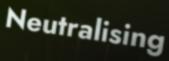
Neutralising